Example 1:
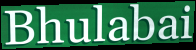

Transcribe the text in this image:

Bhulabai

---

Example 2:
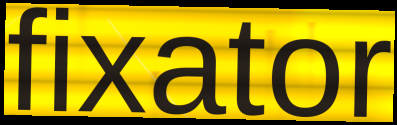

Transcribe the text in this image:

fixator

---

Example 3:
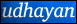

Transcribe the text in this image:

udhayan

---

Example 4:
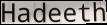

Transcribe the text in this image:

Hadeeth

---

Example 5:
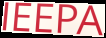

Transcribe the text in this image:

IEEPA